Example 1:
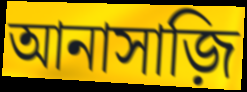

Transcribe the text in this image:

আনাসাজ়ি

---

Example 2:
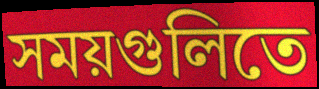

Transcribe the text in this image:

সময়গুলিতে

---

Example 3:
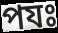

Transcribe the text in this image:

পযঃ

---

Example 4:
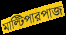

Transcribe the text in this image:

মাল্টিপারপাজ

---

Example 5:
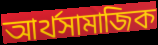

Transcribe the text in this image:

আর্থসামাজিক